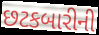
છટકબારીની